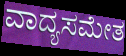
ವಾದ್ಯಸಮೇತ